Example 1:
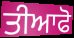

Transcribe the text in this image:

ਤੀਆਫੋ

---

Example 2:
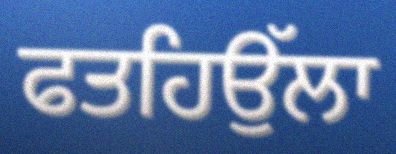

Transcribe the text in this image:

ਫਤਹਿਉੱਲਾ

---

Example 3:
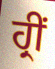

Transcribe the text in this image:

ਹ੍ਰੀਂ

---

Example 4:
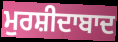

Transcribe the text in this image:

ਮੁਰਸ਼ੀਦਾਬਾਦ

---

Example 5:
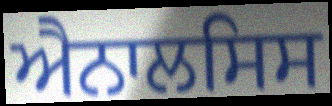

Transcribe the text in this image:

ਐਨਾਲਸਿਸ